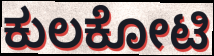
ಕುಲಕೋಟಿ